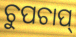
ଚୁପଚାପ୍